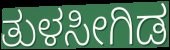
ತುಳಸೀಗಿಡ